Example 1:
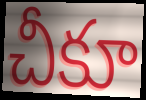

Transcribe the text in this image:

చీకూ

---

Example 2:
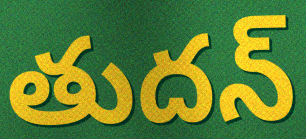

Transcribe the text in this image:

తుదన్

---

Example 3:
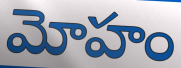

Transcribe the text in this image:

మోహం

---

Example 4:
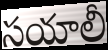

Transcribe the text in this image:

సయాలీ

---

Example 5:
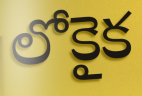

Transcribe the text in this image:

లోకైక